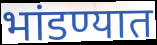
भांडण्यात